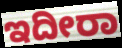
ಇದೀರಾ